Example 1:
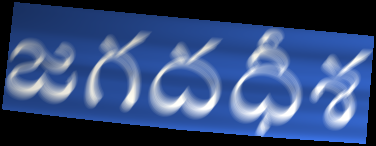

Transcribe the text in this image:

జగదధీశ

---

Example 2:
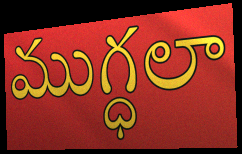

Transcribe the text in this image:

ముగ్ధలా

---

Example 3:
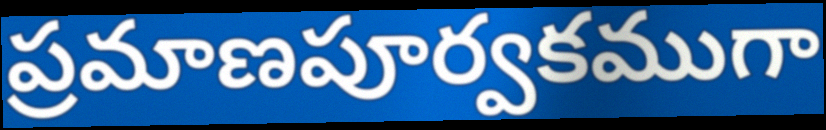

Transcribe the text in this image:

ప్రమాణపూర్వకముగా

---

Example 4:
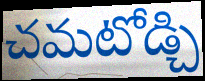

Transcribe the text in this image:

చమటోడ్చి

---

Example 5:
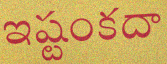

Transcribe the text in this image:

ఇష్టంకదా